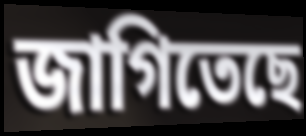
জাগিতেছে